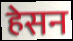
हेसन